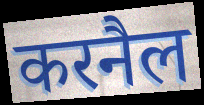
करनैल